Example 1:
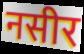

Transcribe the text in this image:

नसीर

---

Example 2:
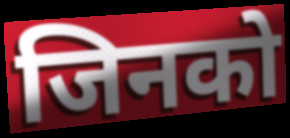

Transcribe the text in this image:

जिनको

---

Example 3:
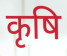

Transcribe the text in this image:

कृषि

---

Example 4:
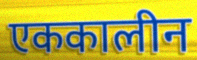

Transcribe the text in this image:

एककालीन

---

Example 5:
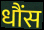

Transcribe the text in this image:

धौंस